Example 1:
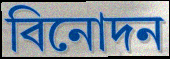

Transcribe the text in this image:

বিনোদন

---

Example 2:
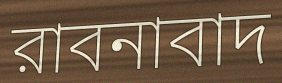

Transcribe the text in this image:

রাবনাবাদ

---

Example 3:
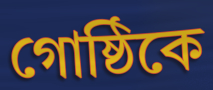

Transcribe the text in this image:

গোষ্ঠিকে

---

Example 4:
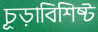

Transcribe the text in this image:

চূড়াবিশিষ্ট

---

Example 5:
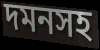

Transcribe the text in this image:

দমনসহ